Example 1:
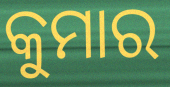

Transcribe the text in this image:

କୁମାର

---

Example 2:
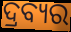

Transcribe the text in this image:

ଦ୍ରବ୍ୟର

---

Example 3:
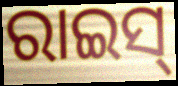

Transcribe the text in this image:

ରାଇସ୍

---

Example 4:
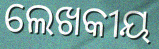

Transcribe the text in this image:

ଲେଖକୀୟ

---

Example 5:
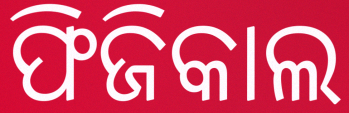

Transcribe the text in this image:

ଫିଜିକାଲ